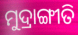
ମୁଦ୍ରାଙ୍ଗୀତି